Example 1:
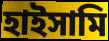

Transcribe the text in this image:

হাইসামি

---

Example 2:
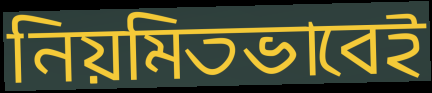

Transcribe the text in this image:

নিয়মিতভাবেই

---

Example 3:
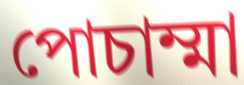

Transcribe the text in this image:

পোচাম্মা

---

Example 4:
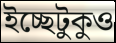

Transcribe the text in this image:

ইচ্ছেটুকুও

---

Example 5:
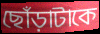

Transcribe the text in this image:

ছোঁড়াটাকে